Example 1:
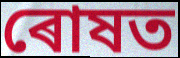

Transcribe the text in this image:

ৰোষত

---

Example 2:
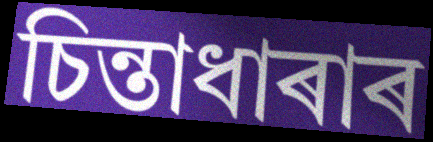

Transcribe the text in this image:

চিন্তাধাৰাৰ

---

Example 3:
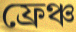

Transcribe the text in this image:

ফ্ৰেঞ্চ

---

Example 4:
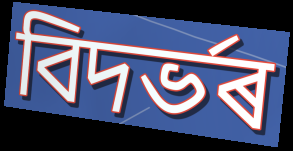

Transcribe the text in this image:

বিদৰ্ভৰ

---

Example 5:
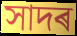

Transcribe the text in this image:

সাদৰ